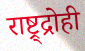
राष्ट्र्द्रोही